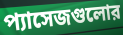
প্যাসেজগুলোর